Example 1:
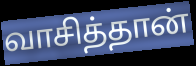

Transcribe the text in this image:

வாசித்தான்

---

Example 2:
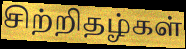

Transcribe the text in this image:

சிற்றிதழ்கள்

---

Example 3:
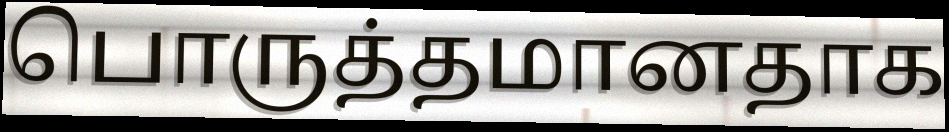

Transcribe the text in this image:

பொருத்தமானதாக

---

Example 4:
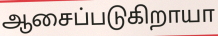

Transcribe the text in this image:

ஆசைப்படுகிறாயா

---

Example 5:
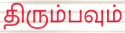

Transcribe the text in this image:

திரும்பவும்